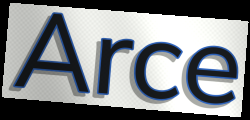
Arce